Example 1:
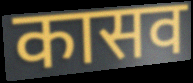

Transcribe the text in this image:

कासव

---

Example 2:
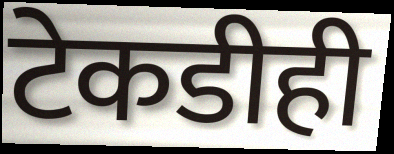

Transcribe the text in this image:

टेकडीही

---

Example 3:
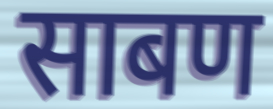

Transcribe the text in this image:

साबण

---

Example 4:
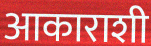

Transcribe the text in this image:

आकाराशी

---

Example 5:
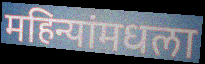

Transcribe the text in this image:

महिन्यांमधला